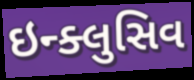
ઇન્ક્લુસિવ